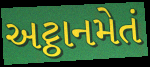
અટ્ઠાનમેતં